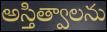
అస్తిత్వాలను